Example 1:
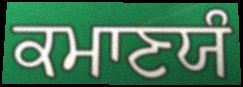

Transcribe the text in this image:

ਕਮਾਣਯੰ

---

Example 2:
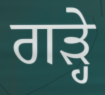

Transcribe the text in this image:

ਗੜ੍ਹੇ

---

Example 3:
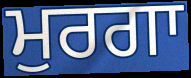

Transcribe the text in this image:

ਮੁਰਗਾ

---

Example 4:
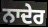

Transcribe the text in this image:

ਨਾਦੇਰ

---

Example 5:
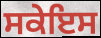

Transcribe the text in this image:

ਸਕੇਇਸ